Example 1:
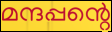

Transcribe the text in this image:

മന്ദപ്പന്റെ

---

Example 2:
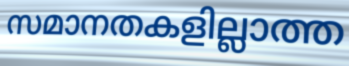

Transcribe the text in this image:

സമാനതകളില്ലാത്ത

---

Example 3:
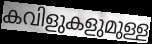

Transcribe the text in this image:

കവിളുകളുമുള്ള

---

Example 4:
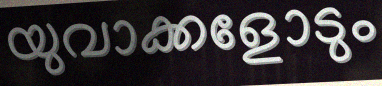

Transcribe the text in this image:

യുവാക്കളോടും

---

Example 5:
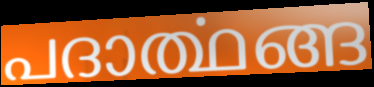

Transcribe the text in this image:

പദാൎത്ഥങ്ങ